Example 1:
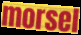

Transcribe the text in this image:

morsel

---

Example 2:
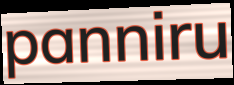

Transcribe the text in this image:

panniru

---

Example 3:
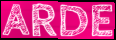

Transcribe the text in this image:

ARDE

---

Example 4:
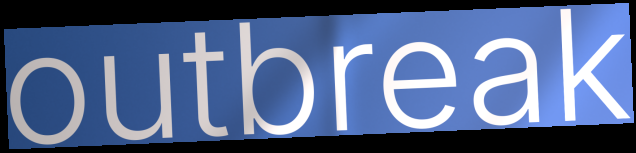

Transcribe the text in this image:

outbreak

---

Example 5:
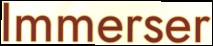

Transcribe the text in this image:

Immerser